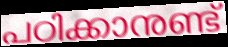
പഠിക്കാനുണ്ട്